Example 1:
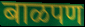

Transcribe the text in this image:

बाळपण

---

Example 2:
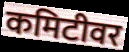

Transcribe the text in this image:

कमिटीवर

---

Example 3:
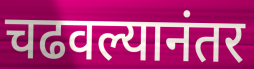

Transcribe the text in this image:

चढवल्यानंतर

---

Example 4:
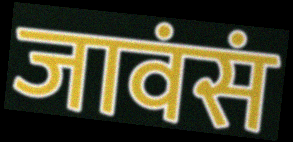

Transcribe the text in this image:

जावंसं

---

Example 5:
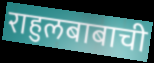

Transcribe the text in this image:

राहुलबाबाची